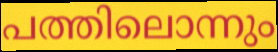
പത്തിലൊന്നും